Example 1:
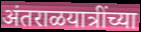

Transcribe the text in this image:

अंतराळयात्रींच्या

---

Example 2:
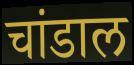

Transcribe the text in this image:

चांडाल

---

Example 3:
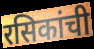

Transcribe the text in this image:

रसिकांची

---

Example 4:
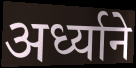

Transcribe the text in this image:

अर्ध्याने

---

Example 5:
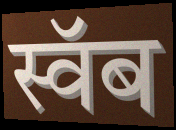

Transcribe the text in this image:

स्वॅब